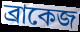
ব্রাকেজ